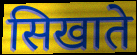
सिखाते